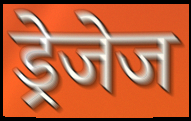
ड्रेजेज